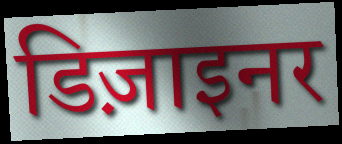
डिज़ाइनर